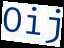
Oij